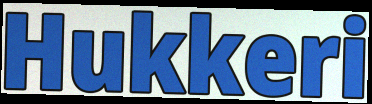
Hukkeri